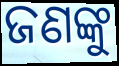
ଜଣଙ୍କୁ